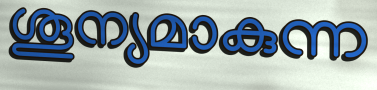
ശൂന്യമാകുന്ന